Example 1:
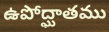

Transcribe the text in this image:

ఉపోద్ఘాతము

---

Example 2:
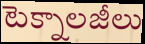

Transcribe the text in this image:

టెక్నాలజీలు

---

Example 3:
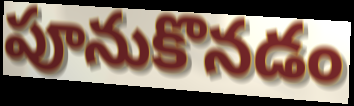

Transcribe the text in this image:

పూనుకొనడం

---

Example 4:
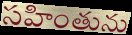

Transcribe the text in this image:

సహింతును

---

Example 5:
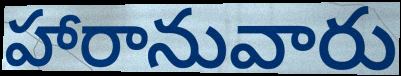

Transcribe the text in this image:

హారానువారు